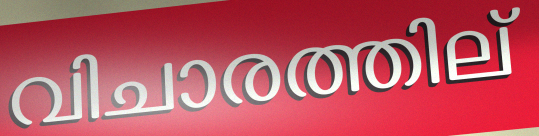
വിചാരത്തില്